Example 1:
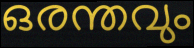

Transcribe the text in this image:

ഒരന്തവും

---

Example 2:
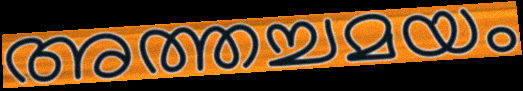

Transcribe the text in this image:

അത്തച്ചമയം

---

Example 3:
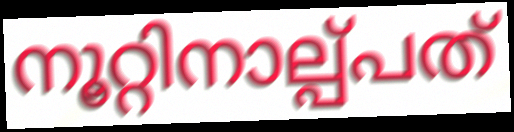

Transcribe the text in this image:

നൂറ്റിനാല്പ്പത്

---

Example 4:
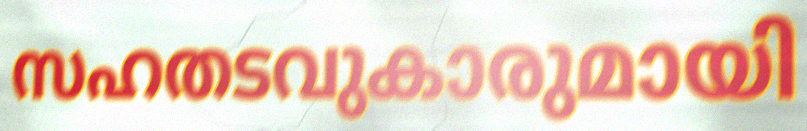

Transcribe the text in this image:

സഹതടവുകാരുമായി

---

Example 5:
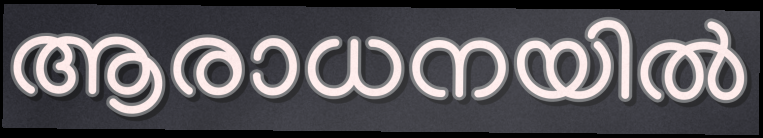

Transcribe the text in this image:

ആരാധനയിൽ